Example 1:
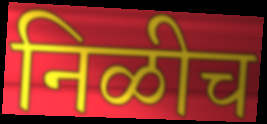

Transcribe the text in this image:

निळीच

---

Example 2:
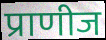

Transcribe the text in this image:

प्राणीज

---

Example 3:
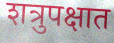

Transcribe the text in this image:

शत्रुपक्षात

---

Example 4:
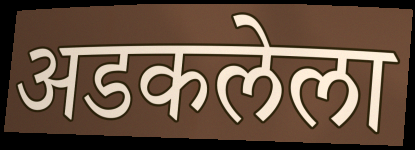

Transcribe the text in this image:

अडकलेला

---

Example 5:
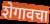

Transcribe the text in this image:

शेगावचा